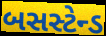
બસસ્ટેન્ડ